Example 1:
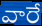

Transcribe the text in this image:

వారే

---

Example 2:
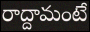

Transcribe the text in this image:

రాద్దామంటే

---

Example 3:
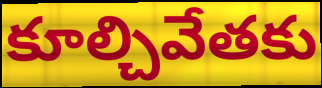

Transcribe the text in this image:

కూల్చివేతకు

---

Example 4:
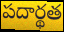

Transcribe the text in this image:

పదార్థత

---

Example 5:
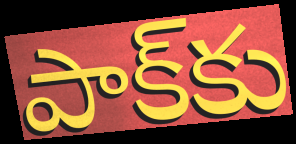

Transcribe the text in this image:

పాక్‌కు